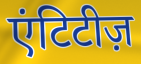
एंटिटीज़